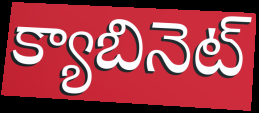
క్యాబినెట్